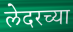
लेदरच्या